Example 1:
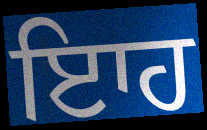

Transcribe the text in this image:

ਇਾਹ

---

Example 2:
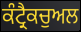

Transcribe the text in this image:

ਕੰਟ੍ਰੈਕਚੁਅਲ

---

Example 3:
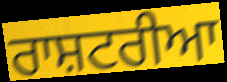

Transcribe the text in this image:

ਰਾਸ਼ਟਰੀਆ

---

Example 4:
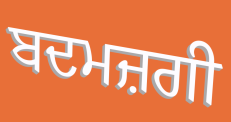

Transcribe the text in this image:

ਬਦਮਜ਼ਗੀ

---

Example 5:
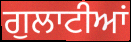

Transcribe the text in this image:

ਗੁਲਾਟੀਆਂ